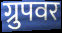
ग्रुपवर